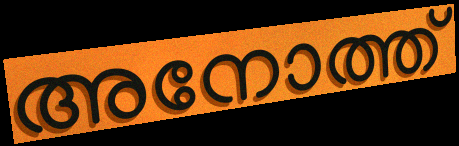
അനോത്ത്